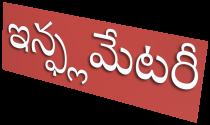
ఇన్ఫ్లమేటరీ